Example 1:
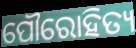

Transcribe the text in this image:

ପୌରୋହିତ୍ୟ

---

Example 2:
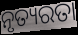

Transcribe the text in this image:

ନୃତ୍ୟରତା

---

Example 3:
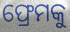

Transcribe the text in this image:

ଫ୍ରେମକୁ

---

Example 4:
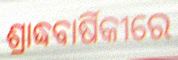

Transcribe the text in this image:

ଶ୍ରାଦ୍ଧବାର୍ଷିକୀରେ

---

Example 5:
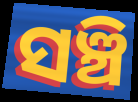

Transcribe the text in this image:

ସଞ୍ଚି